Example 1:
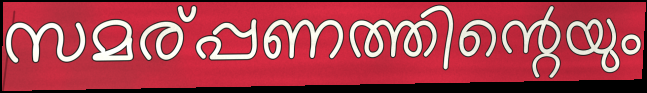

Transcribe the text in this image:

സമര്പ്പണത്തിന്റെയും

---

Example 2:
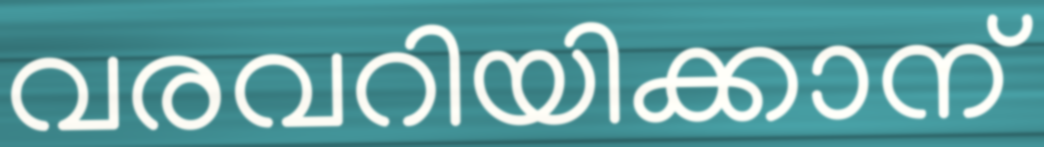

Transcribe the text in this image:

വരവറിയിക്കാന്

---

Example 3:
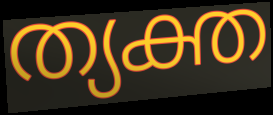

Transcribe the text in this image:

ത്യക്ത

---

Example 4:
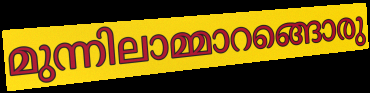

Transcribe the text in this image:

മുന്നിലാമ്മാറങ്ങൊരു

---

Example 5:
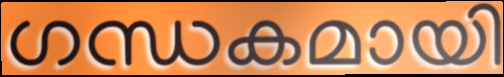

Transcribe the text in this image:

ഗന്ധകമായി